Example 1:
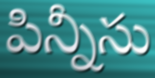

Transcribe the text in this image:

పిన్నీసు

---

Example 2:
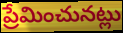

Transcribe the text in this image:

ప్రేమించునట్లు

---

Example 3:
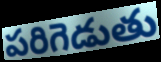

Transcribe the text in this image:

పరిగెడుతు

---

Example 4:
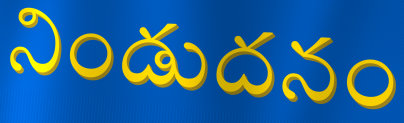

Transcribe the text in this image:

నిండుదనం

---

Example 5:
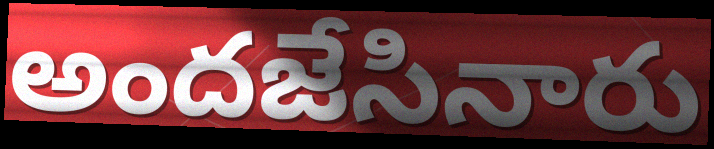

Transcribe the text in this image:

అందజేసినారు